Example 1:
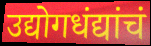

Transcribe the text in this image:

उद्योगधंद्यांचं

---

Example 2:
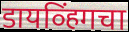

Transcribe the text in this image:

डायव्हिंगचा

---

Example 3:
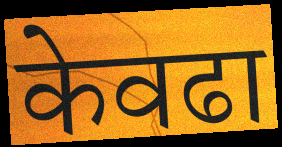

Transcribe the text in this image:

केवढा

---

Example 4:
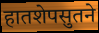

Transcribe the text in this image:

हातशेपसुतने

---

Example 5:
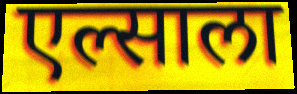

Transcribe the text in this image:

एल्साला